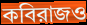
কবিরাজও